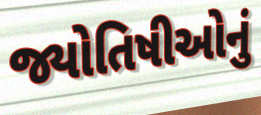
જ્યોતિષીઓનું